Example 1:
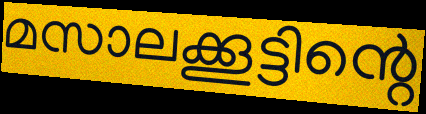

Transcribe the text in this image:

മസാലക്കൂട്ടിന്റെ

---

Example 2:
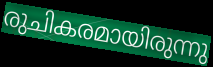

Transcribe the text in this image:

രുചികരമായിരുന്നു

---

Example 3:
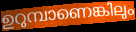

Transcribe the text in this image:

ഉറുമ്പാണെങ്കിലും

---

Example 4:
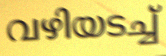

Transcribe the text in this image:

വഴിയടച്ച്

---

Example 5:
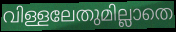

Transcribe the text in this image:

വിള്ളലേതുമില്ലാതെ